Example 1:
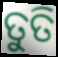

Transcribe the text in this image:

ତୁତି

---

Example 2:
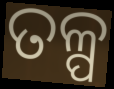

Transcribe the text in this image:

ତଳ୍ପ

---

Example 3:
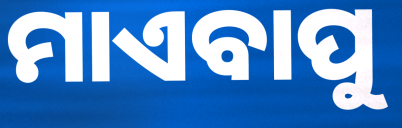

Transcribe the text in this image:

ମାଏବାପୁ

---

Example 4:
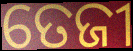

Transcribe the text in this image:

ତେଜୀ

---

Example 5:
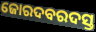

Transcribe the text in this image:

ଜୋରଦବରଦସ୍ତ